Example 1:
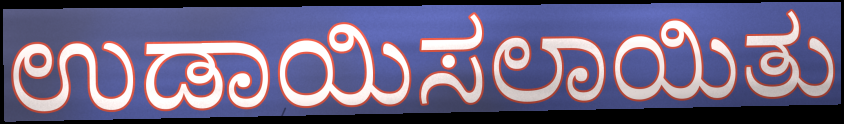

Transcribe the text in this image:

ಉಡಾಯಿಸಲಾಯಿತು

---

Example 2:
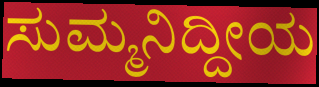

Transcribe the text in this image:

ಸುಮ್ಮನಿದ್ದೀಯ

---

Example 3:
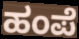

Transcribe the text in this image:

ಹಂಪೆ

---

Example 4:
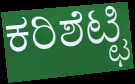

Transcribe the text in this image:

ಕರಿಶೆಟ್ಟಿ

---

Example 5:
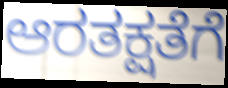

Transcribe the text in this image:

ಆರತಕ್ಷತೆಗೆ